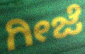
ಗೀಜೆ